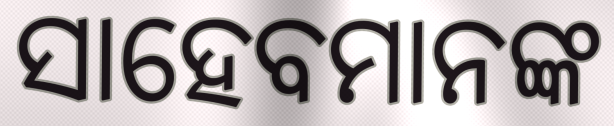
ସାହେବମାନଙ୍କ